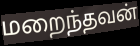
மறைந்தவன்